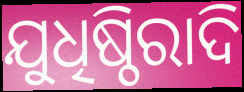
ଯୁଧିଷ୍ଠିରାଦି